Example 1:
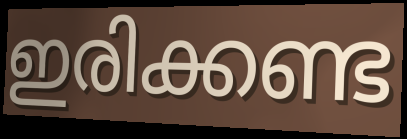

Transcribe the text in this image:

ഇരിക്കണ്ട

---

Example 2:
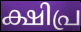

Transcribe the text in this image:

ക്ഷിപ്ര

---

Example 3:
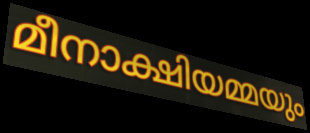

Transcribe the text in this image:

മീനാക്ഷിയമ്മയും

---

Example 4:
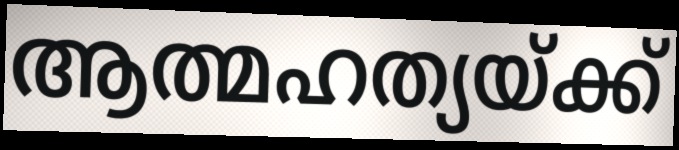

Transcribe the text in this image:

ആത്മഹത്യയ്ക്ക്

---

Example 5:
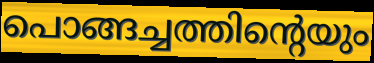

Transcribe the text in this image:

പൊങ്ങച്ചത്തിന്റെയും